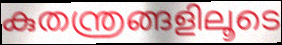
കുതന്ത്രങ്ങളിലൂടെ